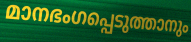
മാനഭംഗപ്പെടുത്താനും